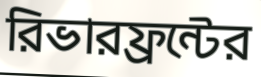
রিভারফ্রন্টের